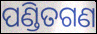
ପଣ୍ଡିତଗଣ